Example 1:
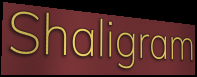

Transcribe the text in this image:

Shaligram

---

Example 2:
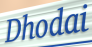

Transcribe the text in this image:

Dhodai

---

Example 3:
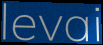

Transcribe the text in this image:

levai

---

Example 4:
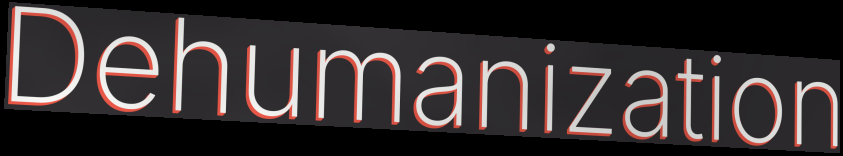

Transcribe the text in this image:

Dehumanization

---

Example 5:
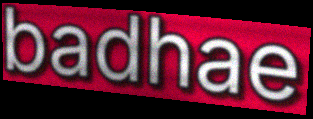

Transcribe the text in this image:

badhae